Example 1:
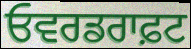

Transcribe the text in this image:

ਓਵਰਡਰਾਫ਼ਟ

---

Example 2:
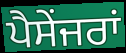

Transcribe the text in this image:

ਪੈਸੇਂਜਰਾਂ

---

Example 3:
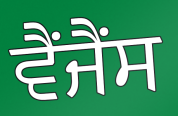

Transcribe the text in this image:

ਵੈਂਜੈਂਸ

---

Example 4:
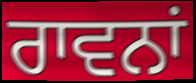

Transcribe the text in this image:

ਰਾਵਨਾਂ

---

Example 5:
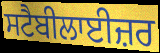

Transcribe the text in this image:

ਸਟੈਬੀਲਾਈਜ਼ਰ